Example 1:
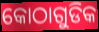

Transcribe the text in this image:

କୋଠାଗୁଡିକ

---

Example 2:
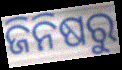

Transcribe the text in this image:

ଜିନିଷରୁ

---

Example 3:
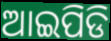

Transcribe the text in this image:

ଆଇପିଡି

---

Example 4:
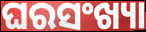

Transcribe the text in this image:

ଘରସଂଖ୍ୟା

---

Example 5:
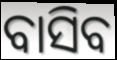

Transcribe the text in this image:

ବାସିବ